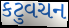
કટુવચન